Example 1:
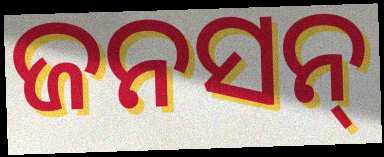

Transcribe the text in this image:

ଜନସନ୍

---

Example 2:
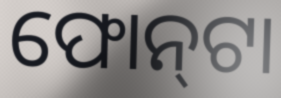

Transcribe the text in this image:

ଫୋନ୍‍ଟା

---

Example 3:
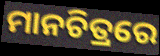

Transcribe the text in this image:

ମାନଚିତ୍ରରେ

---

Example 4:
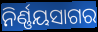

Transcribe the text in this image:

ନିର୍ଣ୍ଣୟସାଗର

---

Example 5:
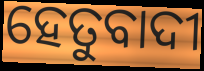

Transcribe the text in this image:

ହେତୁବାଦୀ